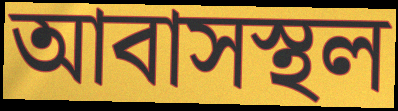
আবাসস্থল